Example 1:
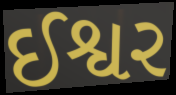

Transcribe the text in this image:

ઈશ્વર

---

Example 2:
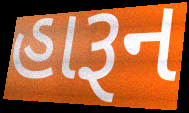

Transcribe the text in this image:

હારૂન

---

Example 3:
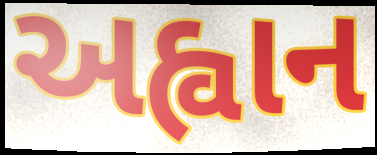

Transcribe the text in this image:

અહ્વાન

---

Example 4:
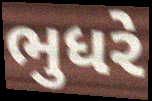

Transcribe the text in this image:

ભુધરે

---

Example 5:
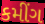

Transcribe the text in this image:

કમીંગ